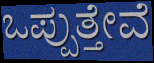
ಒಪ್ಪುತ್ತೇವೆ